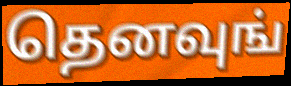
தெனவுங்